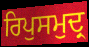
ਰਿਪੁਸਮੁਦ੍ਰ